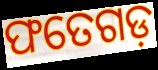
ଫତେଗଡ଼